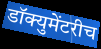
डॉक्युमेंटरीच